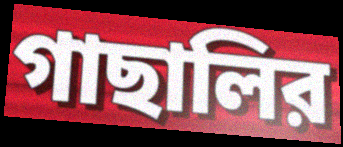
গাছালির